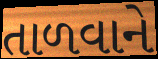
તાળવાને